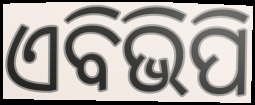
ଏବିଭିପି